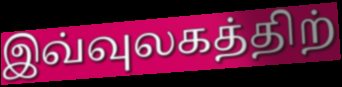
இவ்வுலகத்திற்